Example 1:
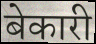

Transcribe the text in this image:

बेकारी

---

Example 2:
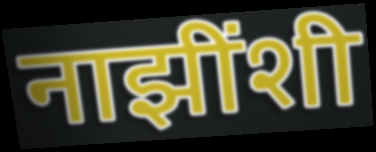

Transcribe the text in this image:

नाझींशी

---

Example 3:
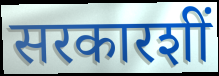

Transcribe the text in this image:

सरकारशीं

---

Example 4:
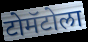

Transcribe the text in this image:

टोमॅटोला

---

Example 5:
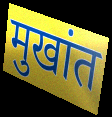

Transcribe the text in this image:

मुखांत